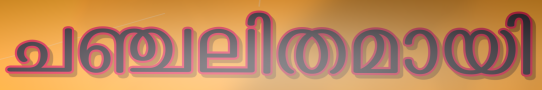
ചഞ്ചലിതമായി